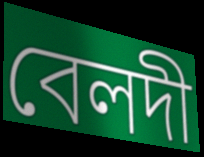
বেলদী